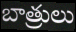
బాత్రులు